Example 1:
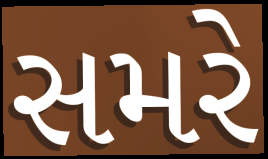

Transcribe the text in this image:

સમરે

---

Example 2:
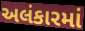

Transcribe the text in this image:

અલંકારમાં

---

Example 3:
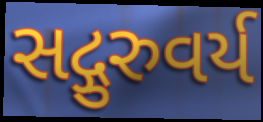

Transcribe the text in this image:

સદ્ગુરુવર્ય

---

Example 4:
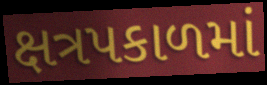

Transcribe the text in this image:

ક્ષત્રપકાળમાં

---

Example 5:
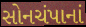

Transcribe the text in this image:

સોનચંપાનાં